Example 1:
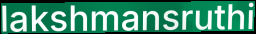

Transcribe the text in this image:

lakshmansruthi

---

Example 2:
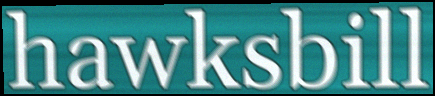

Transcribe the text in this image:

hawksbill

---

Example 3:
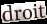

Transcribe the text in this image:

droit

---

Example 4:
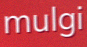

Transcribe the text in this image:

mulgi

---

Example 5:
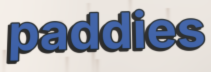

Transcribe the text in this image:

paddies